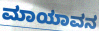
ಮಾಯಾವನ